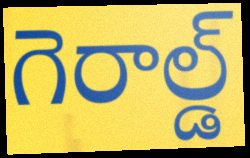
గెరాల్డ్